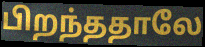
பிறந்ததாலே